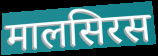
मालसिरस